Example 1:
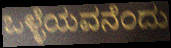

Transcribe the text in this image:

ಒಳ್ಳೆಯವನೆಂದು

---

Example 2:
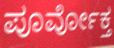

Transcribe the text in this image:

ಪೂರ್ವೋಕ್ತ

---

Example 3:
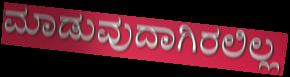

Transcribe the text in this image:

ಮಾಡುವುದಾಗಿರಲಿಲ್ಲ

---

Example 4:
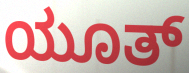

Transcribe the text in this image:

ಯೂತ್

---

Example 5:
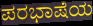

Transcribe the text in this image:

ಪರಭಾಷೆಯ